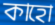
কাহো